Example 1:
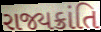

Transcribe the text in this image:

રાજ્યક્રાંતિ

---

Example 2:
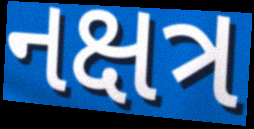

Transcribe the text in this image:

નક્ષત્ર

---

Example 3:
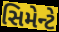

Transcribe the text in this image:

સિમેન્ટે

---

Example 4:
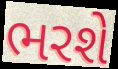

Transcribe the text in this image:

ભરશે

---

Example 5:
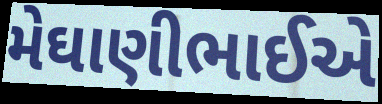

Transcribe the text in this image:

મેઘાણીભાઈએ